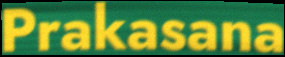
Prakasana